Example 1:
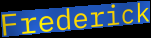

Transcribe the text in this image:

Frederick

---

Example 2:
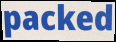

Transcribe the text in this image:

packed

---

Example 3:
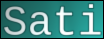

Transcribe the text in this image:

Sati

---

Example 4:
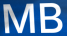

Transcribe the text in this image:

MB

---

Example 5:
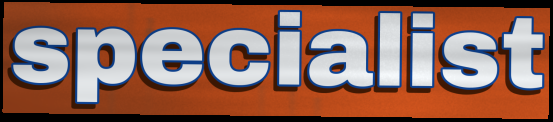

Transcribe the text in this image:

specialist